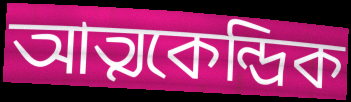
আত্মকেন্দ্রিক